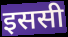
इससी